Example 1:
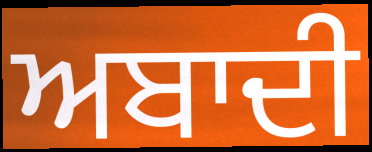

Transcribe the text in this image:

ਅਬਾਦੀ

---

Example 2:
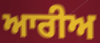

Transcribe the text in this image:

ਆਰੀਅ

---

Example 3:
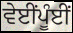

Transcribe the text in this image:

ਵੇਈਂਪੂੰਈਂ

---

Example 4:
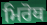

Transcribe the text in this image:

ਮਿਰੋਥ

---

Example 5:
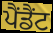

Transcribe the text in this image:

ਪੈਂਡੈਂਟ